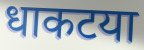
धाकटया